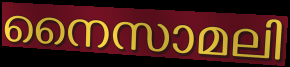
നൈസാമലി